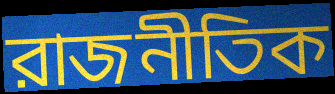
রাজনীতিক